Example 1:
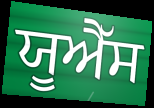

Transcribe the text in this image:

ਯੂਐੱਸ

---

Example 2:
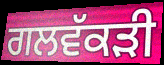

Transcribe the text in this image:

ਗਲਵੱਕਡ਼ੀ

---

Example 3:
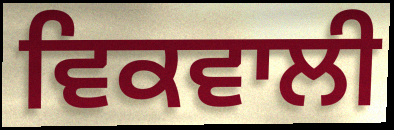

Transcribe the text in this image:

ਵਿਕਵਾਲੀ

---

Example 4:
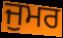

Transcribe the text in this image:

ਜੁਮਰ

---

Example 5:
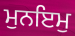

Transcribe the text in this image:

ਮੁਨਇਮੁ